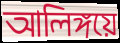
আলিঙ্গয়ে